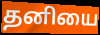
தனியை